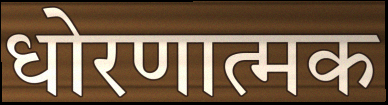
धोरणात्मक